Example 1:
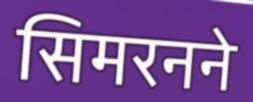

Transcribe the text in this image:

सिमरनने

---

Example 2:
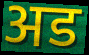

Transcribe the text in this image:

अड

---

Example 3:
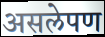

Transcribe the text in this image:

असलेपण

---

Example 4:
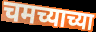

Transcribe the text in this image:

चमच्याच्या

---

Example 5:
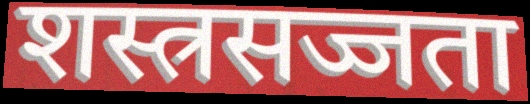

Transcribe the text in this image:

शस्त्रसज्जता